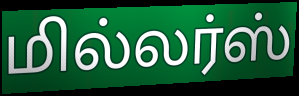
மில்லர்ஸ்